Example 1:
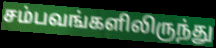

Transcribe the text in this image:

சம்பவங்களிலிருந்து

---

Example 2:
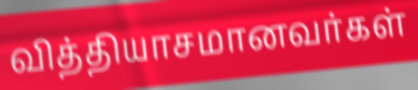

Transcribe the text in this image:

வித்தியாசமானவர்கள்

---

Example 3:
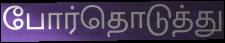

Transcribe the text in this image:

போர்தொடுத்து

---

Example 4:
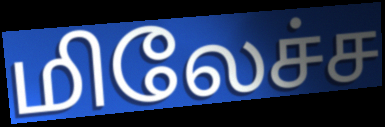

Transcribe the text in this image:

மிலேச்ச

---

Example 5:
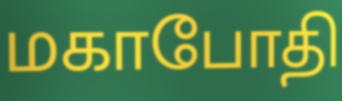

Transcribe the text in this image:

மகாபோதி